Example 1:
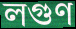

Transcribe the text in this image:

লগুণ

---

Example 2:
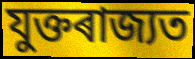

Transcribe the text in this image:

যুক্তৰাজ্যত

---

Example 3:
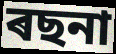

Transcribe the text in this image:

ৰছনা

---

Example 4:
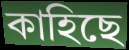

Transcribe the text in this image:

কাহিছে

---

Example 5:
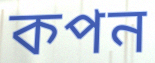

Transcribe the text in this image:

কপন